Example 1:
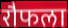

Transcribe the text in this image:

रौफला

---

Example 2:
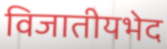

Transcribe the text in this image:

विजातीयभेद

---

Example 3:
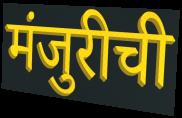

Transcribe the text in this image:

मंजुरीची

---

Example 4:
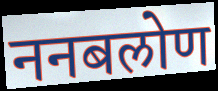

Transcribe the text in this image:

ननबलोण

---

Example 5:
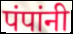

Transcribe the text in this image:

पंपांनी